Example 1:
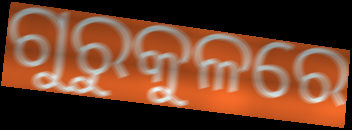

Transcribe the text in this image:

ଗୁରୁକୁଳରେ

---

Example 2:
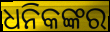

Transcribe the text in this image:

ଧନିକଙ୍କର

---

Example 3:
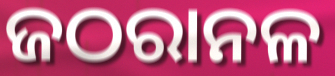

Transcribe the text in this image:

ଜଠରାନଳ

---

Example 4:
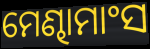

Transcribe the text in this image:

ମେଣ୍ଢାମାଂସ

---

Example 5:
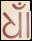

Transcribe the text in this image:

ଧାଁ